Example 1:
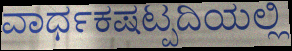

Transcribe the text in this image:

ವಾರ್ಧಕಷಟ್ಪದಿಯಲ್ಲಿ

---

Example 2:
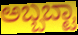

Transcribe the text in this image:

ಅಬ್ಬಬ್ಟಾ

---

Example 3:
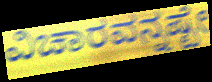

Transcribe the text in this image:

ವಿಚಾರವನ್ನಷ್ಟೇ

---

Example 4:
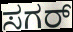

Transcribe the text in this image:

ಸಗರ್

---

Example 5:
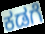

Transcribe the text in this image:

ಕಡಗೆ